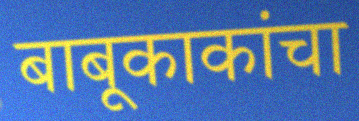
बाबूकाकांचा